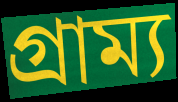
গ্রাম্য